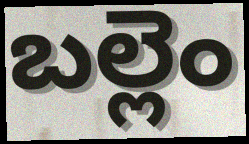
బల్లెం